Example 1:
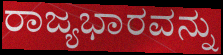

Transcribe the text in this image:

ರಾಜ್ಯಭಾರವನ್ನು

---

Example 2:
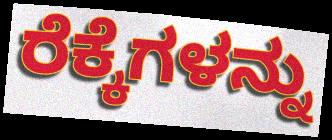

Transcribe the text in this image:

ರೆಕ್ಕೆಗಳನ್ನು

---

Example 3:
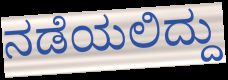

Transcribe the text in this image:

ನಡೆಯಲಿದ್ದು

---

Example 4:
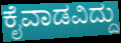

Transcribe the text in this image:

ಕೈವಾಡವಿದ್ದು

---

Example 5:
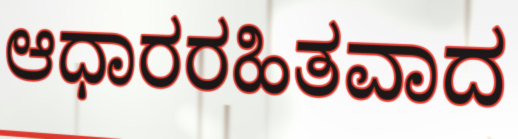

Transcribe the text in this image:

ಆಧಾರರಹಿತವಾದ